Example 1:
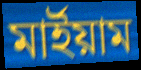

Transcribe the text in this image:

মার্ইয়াম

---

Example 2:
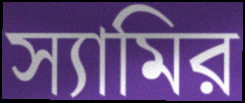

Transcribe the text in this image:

স্যামির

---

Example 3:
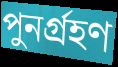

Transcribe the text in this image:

পুনর্গ্রহণ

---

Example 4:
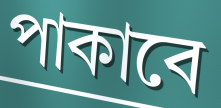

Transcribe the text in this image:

পাকাবে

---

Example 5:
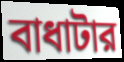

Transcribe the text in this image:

বাধাটার